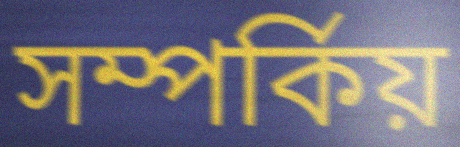
সম্পৰ্কিয়